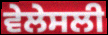
ਵੇਲੇਸਲੀ